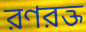
রণরক্ত